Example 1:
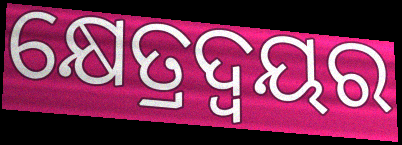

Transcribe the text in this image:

କ୍ଷେତ୍ରଦ୍ୱୟର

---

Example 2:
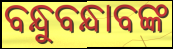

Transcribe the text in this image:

ବନ୍ଧୁବନ୍ଧାବଙ୍କ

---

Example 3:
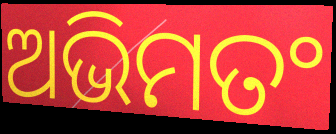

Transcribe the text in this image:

ଅଭିମତଂ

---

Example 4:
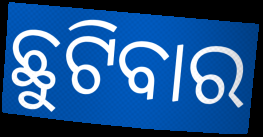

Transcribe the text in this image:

ଛୁଟିବାର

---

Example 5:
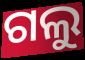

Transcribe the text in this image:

ଗଲୁ